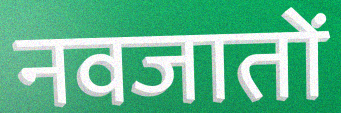
नवजातों